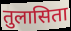
तुलासिता